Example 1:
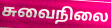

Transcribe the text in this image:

சுவைநிலை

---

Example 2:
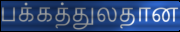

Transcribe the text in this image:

பக்கத்துலதான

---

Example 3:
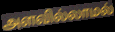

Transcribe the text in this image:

அளவில்லாமல்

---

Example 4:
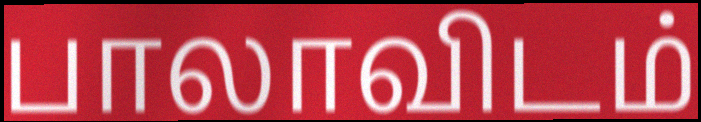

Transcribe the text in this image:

பாலாவிடம்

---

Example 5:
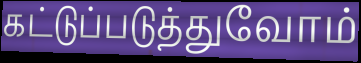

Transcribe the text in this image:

கட்டுப்படுத்துவோம்